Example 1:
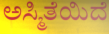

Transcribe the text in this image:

ಅಸ್ಮಿತೆಯಿದೆ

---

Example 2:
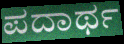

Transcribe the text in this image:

ಪದಾರ್ಥ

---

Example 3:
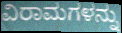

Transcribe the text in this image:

ವಿರಾಮಗಳನ್ನು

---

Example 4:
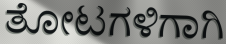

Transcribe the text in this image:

ತೋಟಗಳಿಗಾಗಿ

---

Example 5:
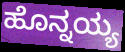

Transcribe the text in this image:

ಹೊನ್ನಯ್ಯ